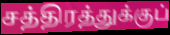
சத்திரத்துக்குப்